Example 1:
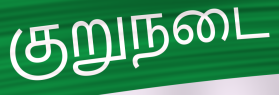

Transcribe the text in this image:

குறுநடை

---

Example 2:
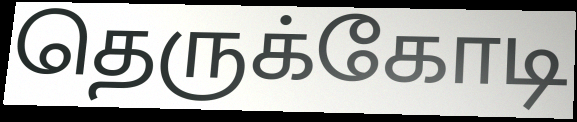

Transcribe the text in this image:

தெருக்கோடி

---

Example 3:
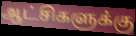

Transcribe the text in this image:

ஆட்சிகளுக்கு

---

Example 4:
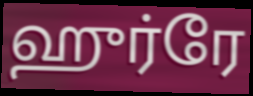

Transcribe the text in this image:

ஹுர்ரே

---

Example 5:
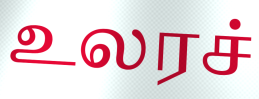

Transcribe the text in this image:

உலரச்